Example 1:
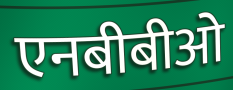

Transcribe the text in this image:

एनबीबीओ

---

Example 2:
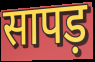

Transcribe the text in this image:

सापड़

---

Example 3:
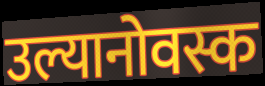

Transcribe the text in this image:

उल्यानोवस्क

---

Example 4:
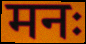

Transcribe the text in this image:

मनः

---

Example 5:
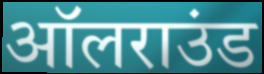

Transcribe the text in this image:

ऑलराउंड